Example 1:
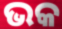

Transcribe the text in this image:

ଭକ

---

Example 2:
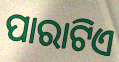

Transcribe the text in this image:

ପାରାଟିଏ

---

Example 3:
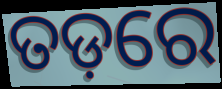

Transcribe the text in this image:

ତଡ଼ରେ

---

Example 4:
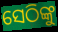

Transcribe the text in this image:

ସେଠିଙ୍କୁ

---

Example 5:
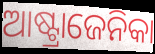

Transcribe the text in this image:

ଆଷ୍ଟ୍ରାଜେନିକା